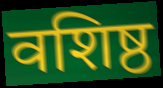
वशिष्ठ